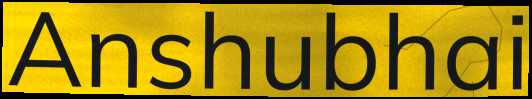
Anshubhai